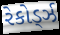
રેકોર્ડ્ઝ